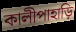
কালীপাহাড়ি